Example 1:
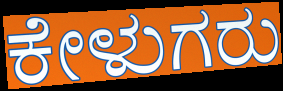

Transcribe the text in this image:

ಕೇಳುಗರು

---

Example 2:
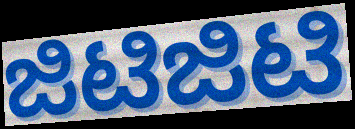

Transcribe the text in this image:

ಜಿಟಿಜಿಟಿ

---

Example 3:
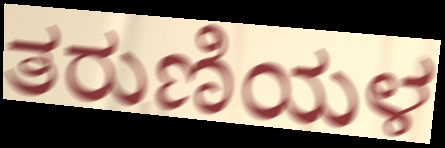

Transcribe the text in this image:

ತರುಣಿಯಳ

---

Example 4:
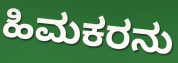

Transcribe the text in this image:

ಹಿಮಕರನು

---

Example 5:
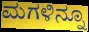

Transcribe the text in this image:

ಮಗಳಿನ್ನೂ